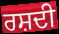
ਰਸ਼ਦੀ